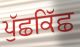
ਪੁੱਛਕਿੱਛ